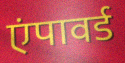
एंपावर्ड